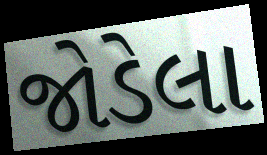
જોડેલા